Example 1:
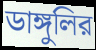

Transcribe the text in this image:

ডাঙ্গুলির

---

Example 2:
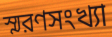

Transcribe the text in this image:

স্মরণসংখ্যা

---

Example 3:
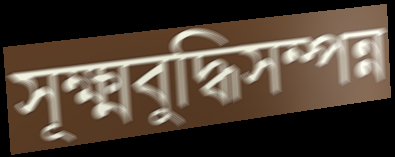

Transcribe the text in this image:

সূক্ষ্মবুদ্ধিসম্পন্ন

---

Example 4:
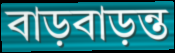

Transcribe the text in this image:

বাড়বাড়ন্ত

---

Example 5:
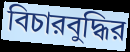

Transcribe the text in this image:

বিচারবুদ্ধির